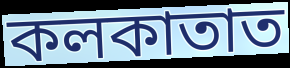
কলকাতাত